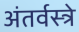
अंतर्वस्त्रे